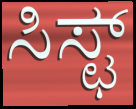
ಸಿಸ್ಟ್